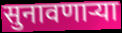
सुनावणाऱ्या